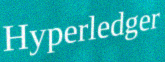
Hyperledger